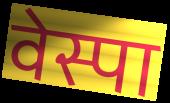
वेस्‍पा